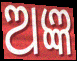
ଅଜ୍ଞ